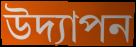
উদ্যাপন